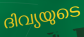
ദിവ്യയുടെ